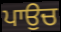
ਪਾਉਚ